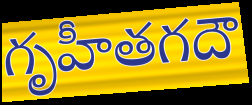
గృహీతగదౌ